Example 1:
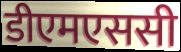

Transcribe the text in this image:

डीएमएससी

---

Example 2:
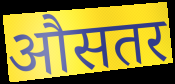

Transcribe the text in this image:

औसतर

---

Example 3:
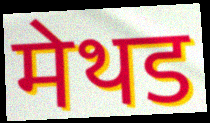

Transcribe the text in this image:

मेथड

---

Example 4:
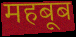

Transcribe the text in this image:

महबूब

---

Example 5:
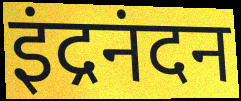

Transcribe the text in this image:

इंद्रनंदन